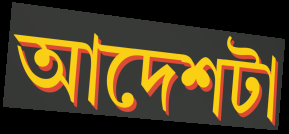
আদেশটা